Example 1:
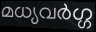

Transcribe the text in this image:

മധ്യവർഗ്ഗ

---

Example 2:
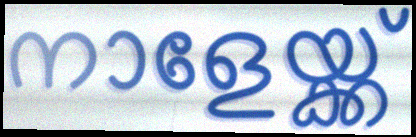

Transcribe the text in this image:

നാളേയ്ക്ക്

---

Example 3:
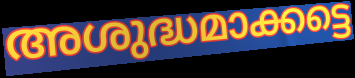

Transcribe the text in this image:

അശുദ്ധമാക്കട്ടെ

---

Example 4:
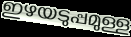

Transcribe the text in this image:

ഇഴയടുപ്പമുള്ള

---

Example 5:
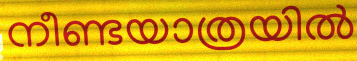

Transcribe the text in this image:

നീണ്ടയാത്രയിൽ